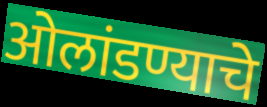
ओलांडण्याचे